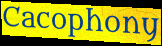
Cacophony